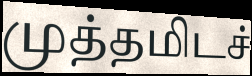
முத்தமிடச்